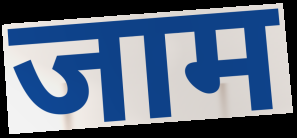
जाम